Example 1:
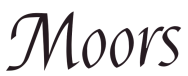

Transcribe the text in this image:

Moors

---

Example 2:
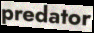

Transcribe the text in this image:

predator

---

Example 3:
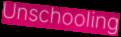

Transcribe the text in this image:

Unschooling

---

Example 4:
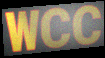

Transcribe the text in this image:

WCC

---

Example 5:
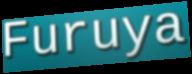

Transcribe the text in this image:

Furuya